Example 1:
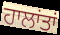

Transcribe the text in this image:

ਹਾਲਾਂਤਾਂ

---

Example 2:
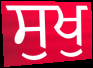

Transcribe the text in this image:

ਸੁਖੁ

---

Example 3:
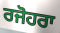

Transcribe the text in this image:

ਰਜੋਹਰਾ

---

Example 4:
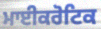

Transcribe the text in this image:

ਮਾਈਕਰੋਟਿਕ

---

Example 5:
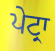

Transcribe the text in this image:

ਪੇਟ੍ਰਾ